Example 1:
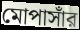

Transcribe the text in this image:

মোপাসাঁর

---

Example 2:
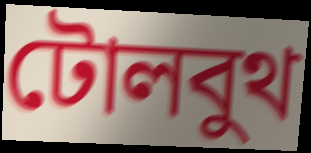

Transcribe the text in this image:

টোলবুথ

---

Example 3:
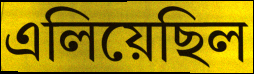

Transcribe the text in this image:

এলিয়েছিল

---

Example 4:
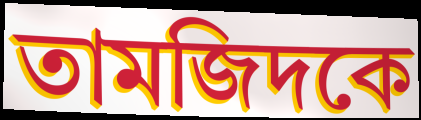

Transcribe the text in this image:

তামজিদকে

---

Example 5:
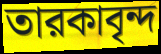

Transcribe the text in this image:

তারকাবৃন্দ